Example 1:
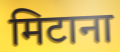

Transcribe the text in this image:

मिटाना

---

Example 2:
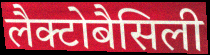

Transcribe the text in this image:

लैक्टोबैसिली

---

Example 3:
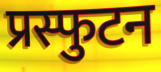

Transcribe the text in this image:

प्रस्‍फुटन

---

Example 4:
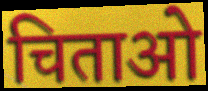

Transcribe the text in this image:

चिताओ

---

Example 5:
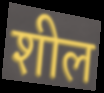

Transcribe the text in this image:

शील